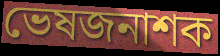
ভেষজনাশক